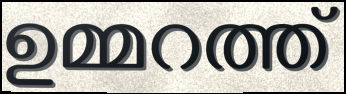
ഉമ്മറത്ത്